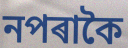
নপৰাকৈ